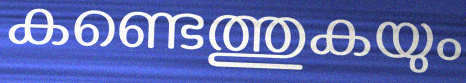
കണ്ടെത്തുകയും